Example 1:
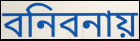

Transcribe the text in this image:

বনিবনায়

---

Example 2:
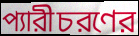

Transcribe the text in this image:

প্যারীচরণের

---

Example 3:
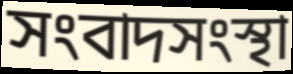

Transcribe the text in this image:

সংবাদসংস্থা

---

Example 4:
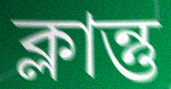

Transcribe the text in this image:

ক্লান্তু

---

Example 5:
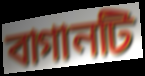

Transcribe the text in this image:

বাগানটি